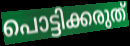
പൊട്ടിക്കരുത്